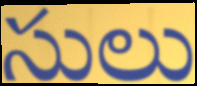
సులు